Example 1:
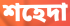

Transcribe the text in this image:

শহেদা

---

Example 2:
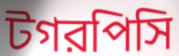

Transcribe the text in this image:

টগরপিসি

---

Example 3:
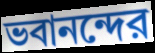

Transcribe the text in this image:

ভবানন্দের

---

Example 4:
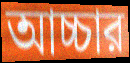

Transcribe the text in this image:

আচ্চার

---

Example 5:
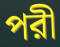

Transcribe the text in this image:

পরী